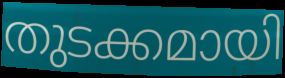
തുടക്കമായി